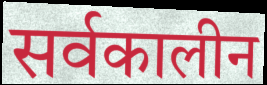
सर्वकालीन